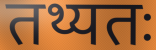
तथ्यतः